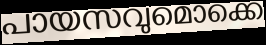
പായസവുമൊക്കെ